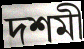
দশমী